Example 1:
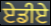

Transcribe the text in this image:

ਏਡੀਏ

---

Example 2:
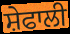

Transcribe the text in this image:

ਸ਼ੇਫਾਲੀ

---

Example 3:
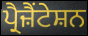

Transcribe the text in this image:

ਪ੍ਰੈਜ਼ੈਂਟੇਸ਼ਨ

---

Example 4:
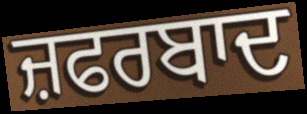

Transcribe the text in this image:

ਜ਼ਫਰਬਾਦ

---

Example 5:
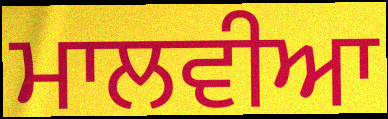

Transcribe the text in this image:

ਮਾਲਵੀਆ